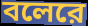
বলেরে